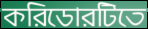
করিডোরটিতে